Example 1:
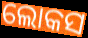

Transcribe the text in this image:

ଲୋକସ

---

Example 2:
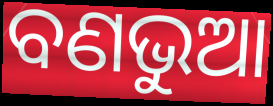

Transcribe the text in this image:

ବଣଭୁଆ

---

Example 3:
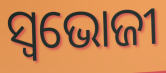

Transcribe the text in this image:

ସ୍ଵଭୋଜୀ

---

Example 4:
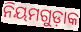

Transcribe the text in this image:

ନିୟମଗୁଡ଼ାକ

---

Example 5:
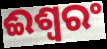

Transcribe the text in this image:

ଈଶ୍ୱରଂ